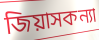
জিয়াসকন্যা